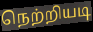
நெற்றியடி